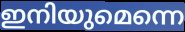
ഇനിയുമെന്നെ